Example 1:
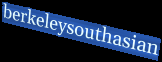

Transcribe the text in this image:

berkeleysouthasian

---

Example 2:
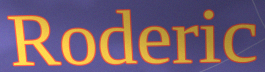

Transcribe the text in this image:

Roderic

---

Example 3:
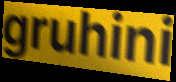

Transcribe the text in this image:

gruhini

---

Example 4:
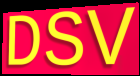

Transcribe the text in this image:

DSV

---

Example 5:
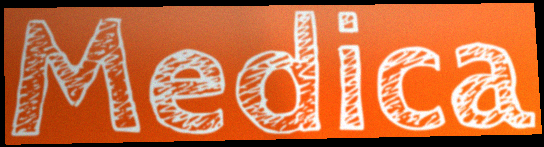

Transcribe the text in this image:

Medica